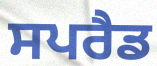
ਸਪਰੈਡ